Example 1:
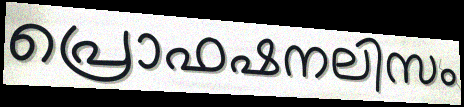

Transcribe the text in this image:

പ്രൊഫഷനലിസം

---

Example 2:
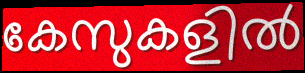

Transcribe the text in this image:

കേസുകളിൽ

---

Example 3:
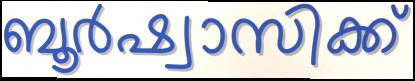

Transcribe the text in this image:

ബൂർഷ്വാസിക്ക്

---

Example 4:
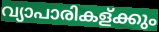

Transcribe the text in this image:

വ്യാപാരികള്ക്കും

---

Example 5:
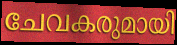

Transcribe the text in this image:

ചേവകരുമായി